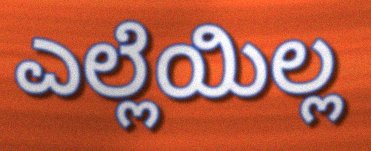
ಎಲ್ಲೆಯಿಲ್ಲ